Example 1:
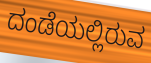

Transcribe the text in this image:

ದಂಡೆಯಲ್ಲಿರುವ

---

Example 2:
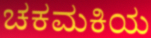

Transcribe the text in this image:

ಚಕಮಕಿಯ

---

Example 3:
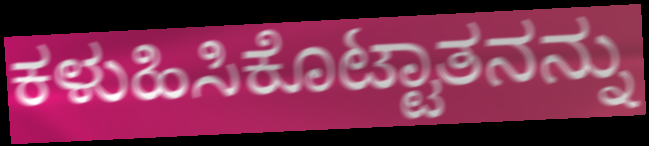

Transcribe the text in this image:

ಕಳುಹಿಸಿಕೊಟ್ಟಾತನನ್ನು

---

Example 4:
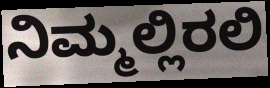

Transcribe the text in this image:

ನಿಮ್ಮಲ್ಲಿರಲಿ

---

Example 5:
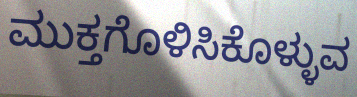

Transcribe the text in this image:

ಮುಕ್ತಗೊಳಿಸಿಕೊಳ್ಳುವ